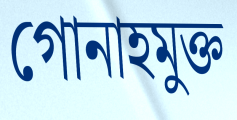
গোনাহমুক্ত